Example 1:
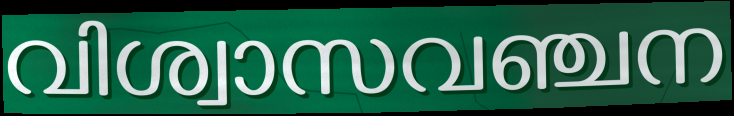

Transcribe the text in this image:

വിശ്വാസവഞ്ചന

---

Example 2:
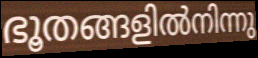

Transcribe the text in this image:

ഭൂതങ്ങളിൽനിന്നു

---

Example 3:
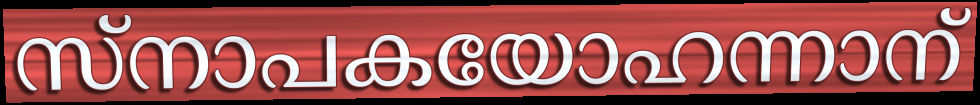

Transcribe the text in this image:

സ്നാപകയോഹന്നാന്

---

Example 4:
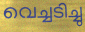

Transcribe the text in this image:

വെച്ചടിച്ചു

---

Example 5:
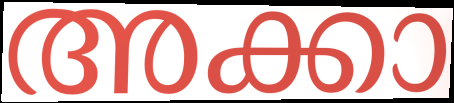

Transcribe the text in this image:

അക്കാ